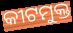
କୀଟମୁକ୍ତ